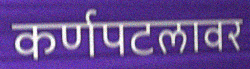
कर्णपटलावर